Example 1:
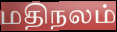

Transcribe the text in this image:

மதிநலம்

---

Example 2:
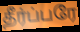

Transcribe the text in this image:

தீர்ப்பரே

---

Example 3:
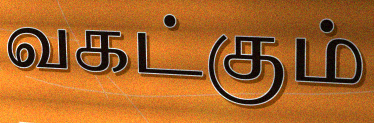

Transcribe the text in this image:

வகட்கும்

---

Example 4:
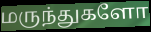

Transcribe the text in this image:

மருந்துகளோ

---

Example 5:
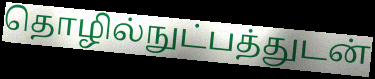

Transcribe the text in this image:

தொழில்நுட்பத்துடன்